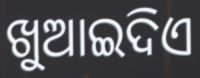
ଖୁଆଇଦିଏ